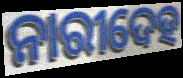
ନାରୀଦେହ